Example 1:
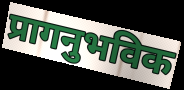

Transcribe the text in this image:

प्रागनुभविक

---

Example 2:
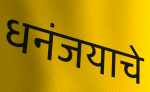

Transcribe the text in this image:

धनंजयाचे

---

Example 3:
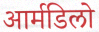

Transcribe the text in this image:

आर्मडिलो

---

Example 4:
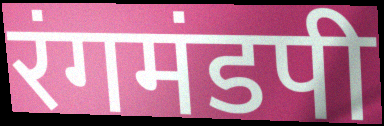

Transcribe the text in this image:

रंगमंडपी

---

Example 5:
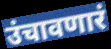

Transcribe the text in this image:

उंचावणारं